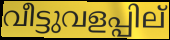
വീട്ടുവളപ്പില്